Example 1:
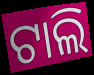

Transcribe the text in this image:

ଟାଲି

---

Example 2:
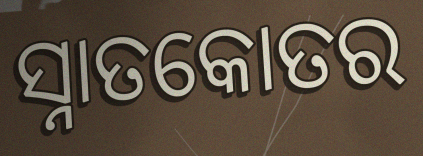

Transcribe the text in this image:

ସ୍ନାତକୋତର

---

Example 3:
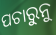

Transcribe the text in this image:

ପଚାରୁନୁ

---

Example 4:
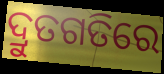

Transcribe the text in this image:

ଦ୍ରୁତଗତିରେ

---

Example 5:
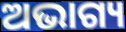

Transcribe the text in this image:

ଅଭାଗ୍ୟ